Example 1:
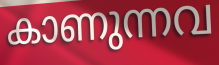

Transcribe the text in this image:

കാണുന്നവ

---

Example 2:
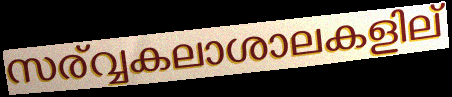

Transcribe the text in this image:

സര്വ്വകലാശാലകളില്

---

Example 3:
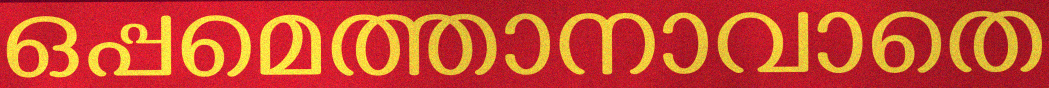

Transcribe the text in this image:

ഒപ്പമെത്താനാവാതെ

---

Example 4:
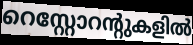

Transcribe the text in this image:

റെസ്റ്റോറന്റുകളിൽ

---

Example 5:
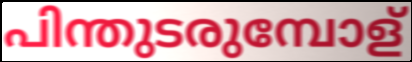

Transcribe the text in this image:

പിന്തുടരുമ്പോള്